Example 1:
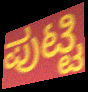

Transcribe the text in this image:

ಪುಟ್ಟಿ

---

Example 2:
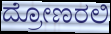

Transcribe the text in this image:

ದ್ರೋಣರಲಿ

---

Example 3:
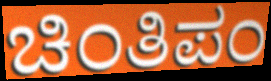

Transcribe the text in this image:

ಚಿಂತಿಪಂ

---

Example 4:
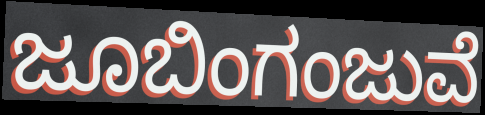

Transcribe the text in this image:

ಜೂಬಿಂಗಂಜುವೆ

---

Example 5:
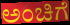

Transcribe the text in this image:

ಅಂಚಿಗೆ